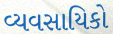
વ્યવસાયિકો